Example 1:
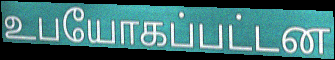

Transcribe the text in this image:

உபயோகப்பட்டன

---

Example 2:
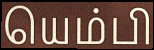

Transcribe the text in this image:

யெம்பி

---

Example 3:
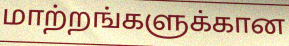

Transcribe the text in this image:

மாற்றங்களுக்கான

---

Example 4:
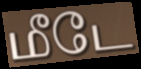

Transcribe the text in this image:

மீடே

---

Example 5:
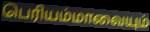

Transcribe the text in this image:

பெரியம்மாவையும்